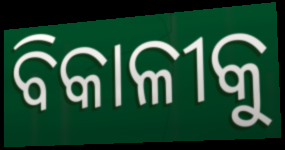
ବିକାଳୀକୁ